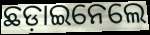
ଛଡ଼ାଇନେଲେ